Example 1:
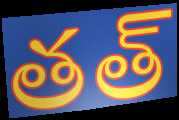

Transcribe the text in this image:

తత్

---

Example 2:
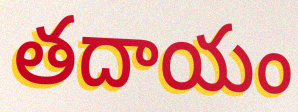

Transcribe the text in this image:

తదాయం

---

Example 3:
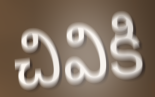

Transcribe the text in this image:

చివికి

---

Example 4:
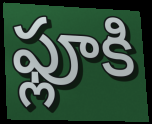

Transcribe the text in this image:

ఫ్లూకి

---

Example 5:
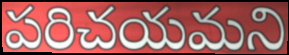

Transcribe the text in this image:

పరిచయమని